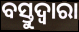
ବସ୍ତୁଦ୍ଵାରା